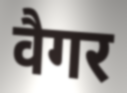
वैगर